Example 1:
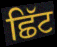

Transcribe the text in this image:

ਛਿੱਟ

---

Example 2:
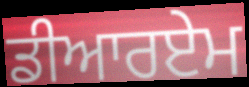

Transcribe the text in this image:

ਡੀਆਰਏਮ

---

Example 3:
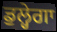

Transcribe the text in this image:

ਡੁਲ੍ਹੇਗਾ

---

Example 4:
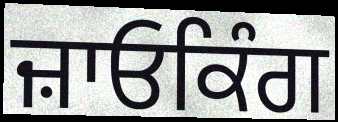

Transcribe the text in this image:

ਜ਼ਾਓਕਿੰਗ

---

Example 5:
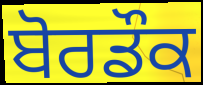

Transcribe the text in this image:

ਬੋਰਡੌਕ